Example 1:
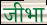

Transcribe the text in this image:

जीभा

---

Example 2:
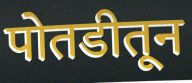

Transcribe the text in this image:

पोतडीतून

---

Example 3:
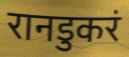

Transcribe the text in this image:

रानडुकरं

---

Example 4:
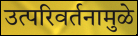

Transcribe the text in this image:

उत्परिवर्तनामुळे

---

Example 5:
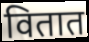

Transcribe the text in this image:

वितात